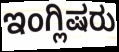
ಇಂಗ್ಲಿಷರು